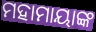
ମହାମାୟାଙ୍କ